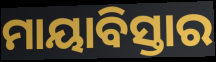
ମାୟାବିସ୍ତାର